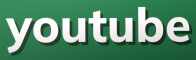
youtube